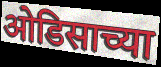
ओडिसाच्या